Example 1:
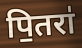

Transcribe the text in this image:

पि॒तरा॑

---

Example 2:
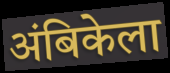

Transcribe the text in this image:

अंबिकेला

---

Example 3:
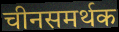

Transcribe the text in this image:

चीनसमर्थक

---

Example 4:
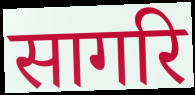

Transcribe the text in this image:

सागरि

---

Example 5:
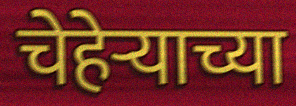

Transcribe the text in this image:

चेहेऱ्याच्या